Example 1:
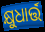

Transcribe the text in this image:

କ୍ଷୁଧାର୍ତ୍ତ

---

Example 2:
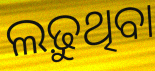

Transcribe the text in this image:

ଲଢ଼ୁଥିବା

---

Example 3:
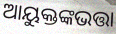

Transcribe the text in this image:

ଆୟୁକ୍ତଙ୍କଭତ୍ତା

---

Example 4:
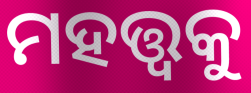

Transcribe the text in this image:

ମହତ୍ତ୍ଵକୁ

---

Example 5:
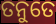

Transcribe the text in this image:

ତନୁତେ